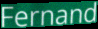
Fernand